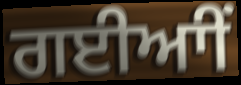
ਗਈਆੀਂ